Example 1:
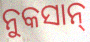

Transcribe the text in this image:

ନୁକସାନ୍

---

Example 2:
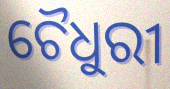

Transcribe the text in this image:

ଚୈଧୁରୀ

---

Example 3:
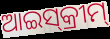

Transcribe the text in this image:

ଆଇସ୍‌କ୍ରୀମ୍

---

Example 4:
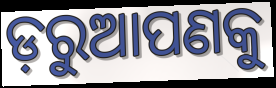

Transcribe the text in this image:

ଡ଼ରୁଆପଣକୁ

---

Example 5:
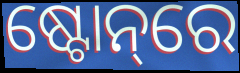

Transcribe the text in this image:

ଷ୍ଟୋନ୍‌ରେ